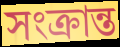
সংক্ৰান্ত